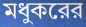
মধুকরের